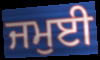
ਜਮੁਈ